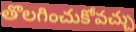
తొలగించుకోవచ్చు